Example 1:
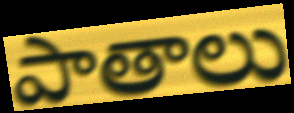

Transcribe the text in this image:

పాతాలు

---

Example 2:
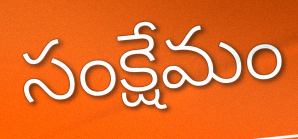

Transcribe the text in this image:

సంక్షేమం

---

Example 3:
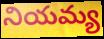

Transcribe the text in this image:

నియమ్య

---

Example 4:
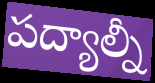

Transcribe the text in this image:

పద్యాల్నీ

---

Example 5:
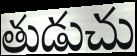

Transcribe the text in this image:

తుడుచు